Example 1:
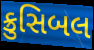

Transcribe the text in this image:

ક્રુસિબલ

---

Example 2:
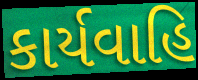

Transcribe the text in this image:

કાર્યવાહિ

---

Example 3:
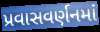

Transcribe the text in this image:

પ્રવાસવર્ણનમાં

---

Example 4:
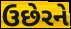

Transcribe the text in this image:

ઉછેરને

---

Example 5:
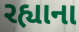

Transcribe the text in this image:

રહ્યાના